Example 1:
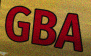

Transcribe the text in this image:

GBA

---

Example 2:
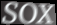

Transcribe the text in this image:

SOX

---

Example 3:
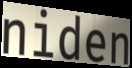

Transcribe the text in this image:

niden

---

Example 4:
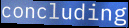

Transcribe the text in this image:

concluding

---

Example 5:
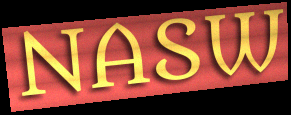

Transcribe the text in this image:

NASW